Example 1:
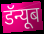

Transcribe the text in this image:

डॅन्यूब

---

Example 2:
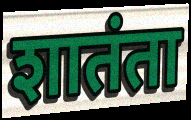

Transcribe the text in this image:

शातंता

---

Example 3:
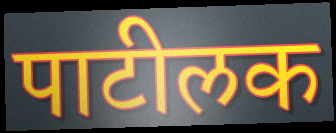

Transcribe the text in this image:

पाटीलक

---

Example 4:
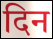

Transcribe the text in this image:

दिन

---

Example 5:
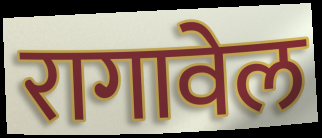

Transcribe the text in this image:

रागावेल